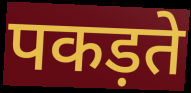
पकड़ते